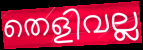
തെളിവല്ല